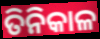
ତିନିକାଳ